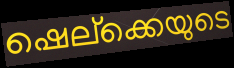
ഷെല്ക്കെയുടെ